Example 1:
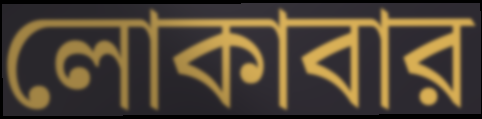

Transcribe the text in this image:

লোকাবার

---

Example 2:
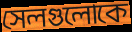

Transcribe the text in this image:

সেলগুলোকে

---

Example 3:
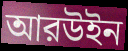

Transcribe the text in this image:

আরউইন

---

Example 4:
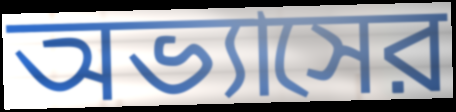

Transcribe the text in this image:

অভ্যাসের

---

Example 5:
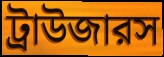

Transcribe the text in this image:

ট্রাউজারস